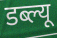
डब्ल्यू